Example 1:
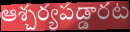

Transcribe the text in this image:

ఆశ్చర్యపడ్డారట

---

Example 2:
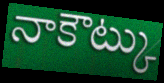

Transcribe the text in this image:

నాకౌట్కు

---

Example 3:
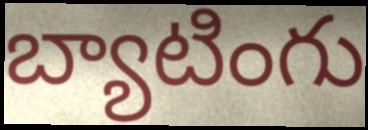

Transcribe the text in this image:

బ్యాటింగు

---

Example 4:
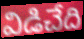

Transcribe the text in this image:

విడిచేది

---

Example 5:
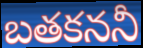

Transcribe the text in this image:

బతకననీ